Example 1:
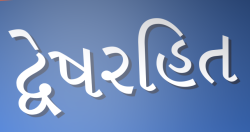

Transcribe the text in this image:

દ્વેષરહિત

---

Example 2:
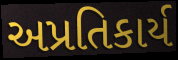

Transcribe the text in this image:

અપ્રતિકાર્ય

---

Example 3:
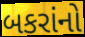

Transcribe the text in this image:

બકરાંનો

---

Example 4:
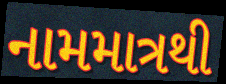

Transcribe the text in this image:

નામમાત્રથી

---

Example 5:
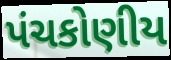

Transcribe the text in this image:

પંચકોણીય